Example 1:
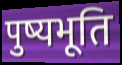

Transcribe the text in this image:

पुष्यभूति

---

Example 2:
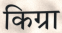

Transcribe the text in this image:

किग्रा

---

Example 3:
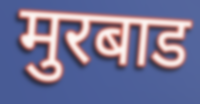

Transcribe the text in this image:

मुरबाड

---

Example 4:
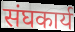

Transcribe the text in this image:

संघकार्य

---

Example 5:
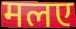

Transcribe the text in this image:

मलए